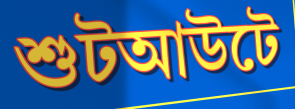
শুটআউটে